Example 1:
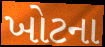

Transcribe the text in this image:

ખોટના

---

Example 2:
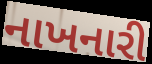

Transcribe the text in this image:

નાખનારી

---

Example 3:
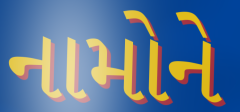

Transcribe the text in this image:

નામોને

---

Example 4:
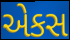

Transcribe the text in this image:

એકસ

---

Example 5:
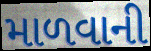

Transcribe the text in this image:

માળવાની